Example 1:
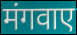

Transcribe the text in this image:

मंगवाए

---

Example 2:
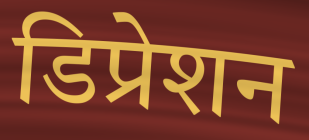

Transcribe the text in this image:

डिप्रेशन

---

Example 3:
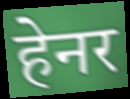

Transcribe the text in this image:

हेनर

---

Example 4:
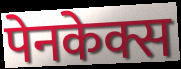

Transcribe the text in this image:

पेनकेक्स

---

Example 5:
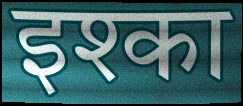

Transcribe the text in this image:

इश्का